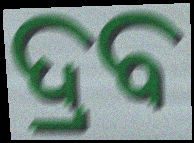
ଦ୍ରବ